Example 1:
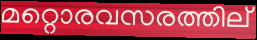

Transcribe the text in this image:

മറ്റൊരവസരത്തില്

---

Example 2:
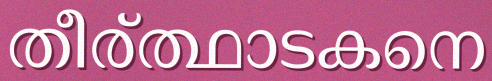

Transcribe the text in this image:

തീര്ത്ഥാടകനെ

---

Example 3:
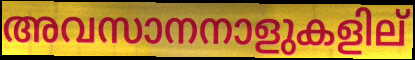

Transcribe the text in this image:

അവസാനനാളുകളില്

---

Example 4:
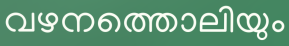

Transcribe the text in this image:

വഴനത്തൊലിയും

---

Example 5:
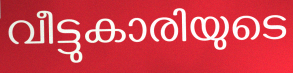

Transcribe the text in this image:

വീട്ടുകാരിയുടെ